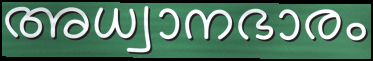
അധ്വാനഭാരം